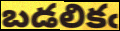
బడలికఁ